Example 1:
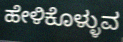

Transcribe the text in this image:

ಹೇಳಿಕೊಳ್ಳುವ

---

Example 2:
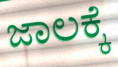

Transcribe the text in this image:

ಜಾಲಕ್ಕೆ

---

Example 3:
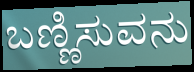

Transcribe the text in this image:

ಬಣ್ಣಿಸುವನು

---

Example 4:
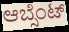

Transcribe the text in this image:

ಆಬ್ಸೆಂಟ್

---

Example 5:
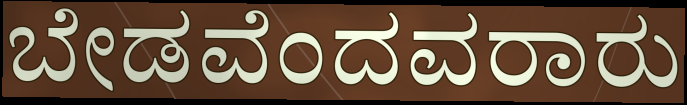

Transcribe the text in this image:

ಬೇಡವೆಂದವರಾರು